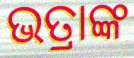
ଭତ୍ରାଙ୍କ